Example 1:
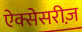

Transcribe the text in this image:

ऐक्सेसरीज़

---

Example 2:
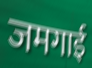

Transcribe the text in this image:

जमगाई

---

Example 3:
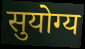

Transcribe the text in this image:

सुयोग्य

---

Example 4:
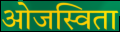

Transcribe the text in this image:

ओजस्विता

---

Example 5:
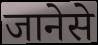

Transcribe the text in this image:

जानेसे